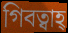
গিবত্বাহ্